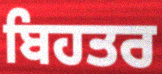
ਬਿਹਤਰ